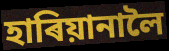
হাৰিয়ানালৈ